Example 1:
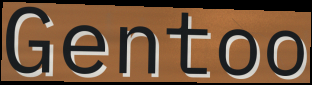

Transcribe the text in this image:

Gentoo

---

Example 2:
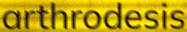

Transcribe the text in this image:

arthrodesis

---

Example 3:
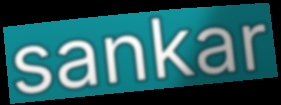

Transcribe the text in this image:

sankar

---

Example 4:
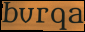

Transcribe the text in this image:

burqa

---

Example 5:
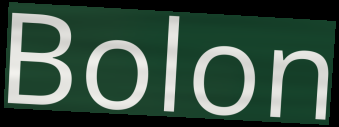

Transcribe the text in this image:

Bolon